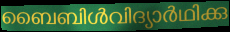
ബൈബിൾവിദ്യാർഥിക്കു